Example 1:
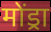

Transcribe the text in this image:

मोंड्रा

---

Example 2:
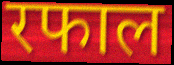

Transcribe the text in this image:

रफाल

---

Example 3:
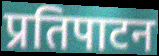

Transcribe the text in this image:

प्रतिपाटन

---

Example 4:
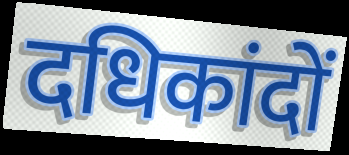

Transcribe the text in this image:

दधिकांदों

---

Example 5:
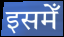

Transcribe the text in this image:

इसमेँ